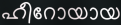
ഹീറോയായ